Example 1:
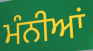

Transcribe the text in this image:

ਮੰਨੀਆਂ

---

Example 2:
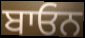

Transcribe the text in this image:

ਬਾਓਨ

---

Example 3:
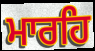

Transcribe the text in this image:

ਮਾਰਹਿ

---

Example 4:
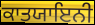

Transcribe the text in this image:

ਕਾਤਯਾਇਨੀ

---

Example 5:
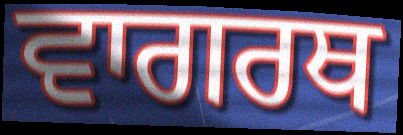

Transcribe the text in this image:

ਵਾਗਰਥ